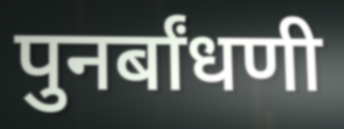
पुनर्बांधणी